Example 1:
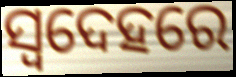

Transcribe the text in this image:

ସ୍ଵଦେହରେ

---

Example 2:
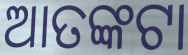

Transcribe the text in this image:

ଆତଙ୍କଟା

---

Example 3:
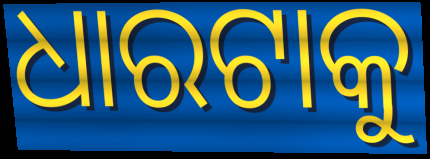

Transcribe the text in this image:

ଧାରଟାକୁ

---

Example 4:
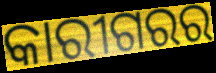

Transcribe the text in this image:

କାରୀଗରର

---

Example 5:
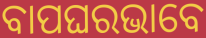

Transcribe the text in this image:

ବାପଘରଭାବେ